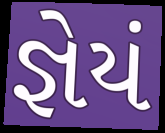
જ્ઞેયં